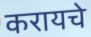
करायचे